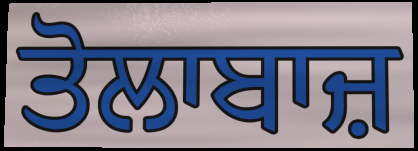
ਤੋਲਾਬਾਜ਼